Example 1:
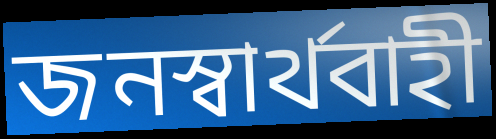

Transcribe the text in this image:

জনস্বার্থবাহী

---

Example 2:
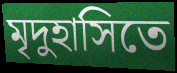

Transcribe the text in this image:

মৃদুহাসিতে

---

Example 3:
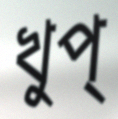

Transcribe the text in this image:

খুপ্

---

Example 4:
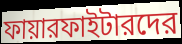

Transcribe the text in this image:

ফায়ারফাইটারদের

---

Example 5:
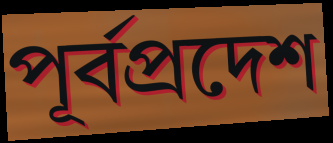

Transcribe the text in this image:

পূর্বপ্রদেশ